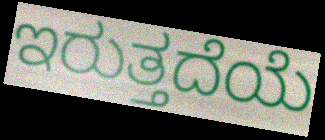
ಇರುತ್ತದೆಯೆ